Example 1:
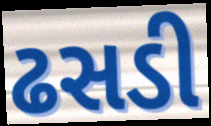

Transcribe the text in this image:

ઢસડી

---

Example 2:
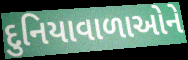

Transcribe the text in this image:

દુનિયાવાળાઓને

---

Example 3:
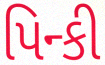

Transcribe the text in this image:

પિન્કી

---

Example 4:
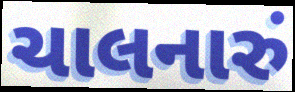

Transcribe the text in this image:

ચાલનારું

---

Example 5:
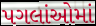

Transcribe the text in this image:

પગલાંઓમાં